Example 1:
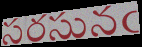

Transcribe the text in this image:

సరసునఁ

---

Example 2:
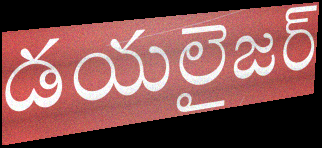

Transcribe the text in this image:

డయలైజర్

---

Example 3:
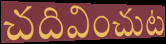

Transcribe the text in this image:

చదివించుట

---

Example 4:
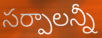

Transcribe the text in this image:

సర్పాలన్నీ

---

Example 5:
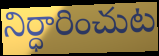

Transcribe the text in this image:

నిర్ధారించుట